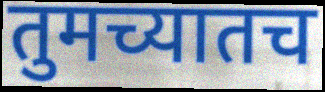
तुमच्यातच